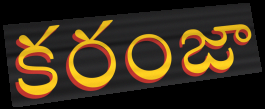
కరంజా